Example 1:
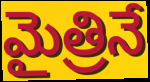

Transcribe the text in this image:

మైత్రినే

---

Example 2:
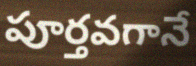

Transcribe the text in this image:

పూర్తవగానే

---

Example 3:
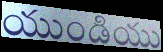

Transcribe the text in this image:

యుండియు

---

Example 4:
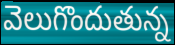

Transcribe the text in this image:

వెలుగొందుతున్న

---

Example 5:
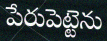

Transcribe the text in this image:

పేరుపెట్టెను